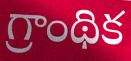
గ్రాంథిక